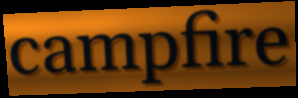
campfire